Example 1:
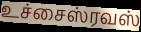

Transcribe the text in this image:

உச்சைஸ்ரவஸ்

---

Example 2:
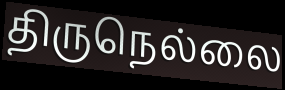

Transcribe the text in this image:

திருநெல்லை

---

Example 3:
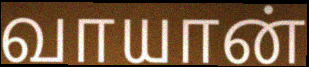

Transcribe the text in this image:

வாயான்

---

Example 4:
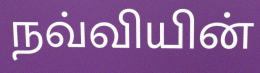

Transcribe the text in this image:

நவ்வியின்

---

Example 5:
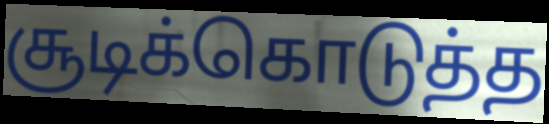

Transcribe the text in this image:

சூடிக்கொடுத்த